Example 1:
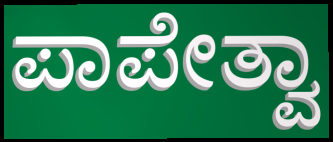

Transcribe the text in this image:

ಪಾಪೇತ್ವಾ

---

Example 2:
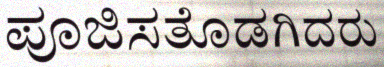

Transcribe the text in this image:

ಪೂಜಿಸತೊಡಗಿದರು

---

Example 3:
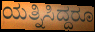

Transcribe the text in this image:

ಯತ್ನಿಸಿದ್ದರೂ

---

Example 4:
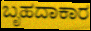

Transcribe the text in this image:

ಬೃಹದಾಕಾರ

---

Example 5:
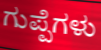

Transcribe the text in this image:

ಗುಪ್ಪೆಗಳು